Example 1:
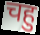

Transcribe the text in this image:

चहु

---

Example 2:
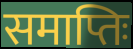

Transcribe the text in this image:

समाप्तिः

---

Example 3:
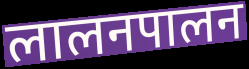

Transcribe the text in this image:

लालनपालन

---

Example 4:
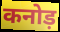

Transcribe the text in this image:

कनोड़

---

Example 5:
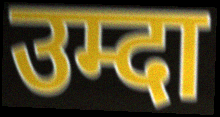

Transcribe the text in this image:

उम्दा